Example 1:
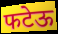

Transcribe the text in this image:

फटेऊ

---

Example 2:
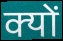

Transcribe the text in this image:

क्यों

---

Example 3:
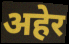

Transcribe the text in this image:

अहेर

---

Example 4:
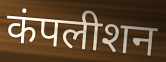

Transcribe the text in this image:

कंपलीशन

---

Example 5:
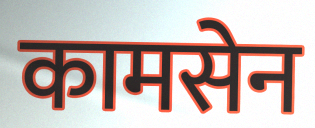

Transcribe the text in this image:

कामसेन